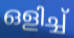
ഒളിച്ച്